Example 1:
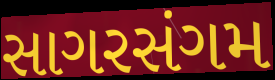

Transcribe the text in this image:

સાગરસંગમ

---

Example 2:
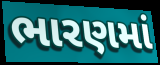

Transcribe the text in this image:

ભારણમાં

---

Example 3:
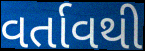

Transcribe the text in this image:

વર્તાવથી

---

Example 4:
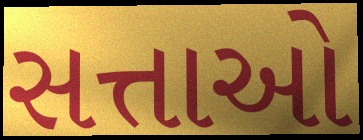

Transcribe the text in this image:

સત્તાઓ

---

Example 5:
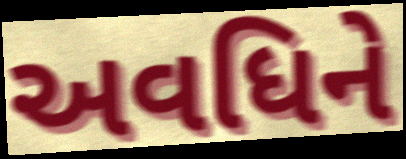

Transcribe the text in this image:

અવધિને